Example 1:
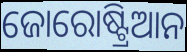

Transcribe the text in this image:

ଜୋରୋଷ୍ଟ୍ରିଆନ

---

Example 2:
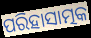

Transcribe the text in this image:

ପରିହାସାତ୍ମକ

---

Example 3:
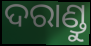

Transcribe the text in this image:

ଦରାଣ୍ଡୁ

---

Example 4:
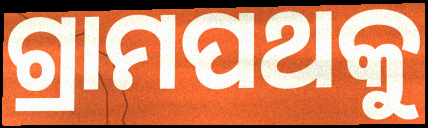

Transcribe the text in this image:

ଗ୍ରାମପଥକୁ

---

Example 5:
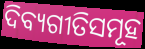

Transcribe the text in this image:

ଦିବ୍ୟଗୀତିସମୂହ